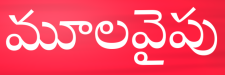
మూలవైపు